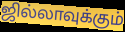
ஜில்லாவுக்கும்